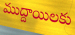
ముద్దాయిలకు